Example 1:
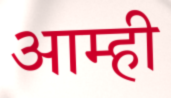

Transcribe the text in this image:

आम्ही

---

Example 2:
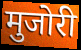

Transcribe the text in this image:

मुजोरी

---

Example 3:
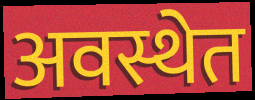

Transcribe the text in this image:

अवस्थेत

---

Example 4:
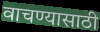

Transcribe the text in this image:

वाचण्यासाठी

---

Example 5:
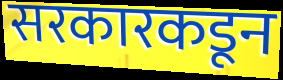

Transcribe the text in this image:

सरकारकडून